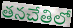
తనచేతిలో